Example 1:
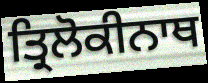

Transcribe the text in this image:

ਤ੍ਰਿਲੋਕੀਨਾਥ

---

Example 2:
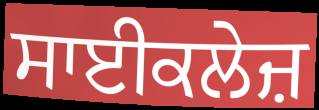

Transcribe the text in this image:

ਸਾਈਕਲੇਜ਼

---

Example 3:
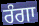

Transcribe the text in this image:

ਰੰਗਾ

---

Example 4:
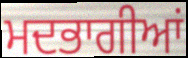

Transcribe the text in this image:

ਮਦਭਾਗੀਆਂ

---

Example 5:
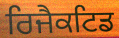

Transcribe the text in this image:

ਰਿਜੈਕਟਿਡ